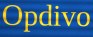
Opdivo